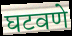
घटवणे